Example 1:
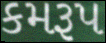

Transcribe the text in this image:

કમરૂપ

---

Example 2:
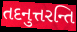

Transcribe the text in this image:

તદનુત્તરન્તિ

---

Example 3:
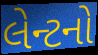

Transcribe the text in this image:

લેન્ટનો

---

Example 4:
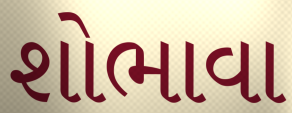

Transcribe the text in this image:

શોભાવા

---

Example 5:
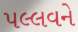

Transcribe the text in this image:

પલ્લવને